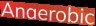
Anaerobic